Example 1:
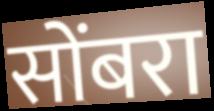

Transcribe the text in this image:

सोंबरा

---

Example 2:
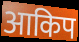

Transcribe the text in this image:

आकिप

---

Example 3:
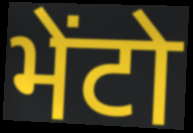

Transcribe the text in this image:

भेंटो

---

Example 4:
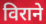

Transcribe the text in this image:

विराने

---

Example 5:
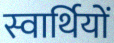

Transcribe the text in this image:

स्वार्थियों